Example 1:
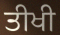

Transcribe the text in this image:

ਤੀਖੀ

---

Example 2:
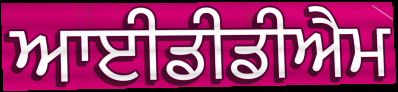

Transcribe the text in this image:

ਆਈਡੀਡੀਐਮ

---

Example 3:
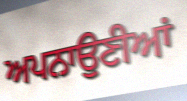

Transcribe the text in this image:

ਅਪਨਾਉਣੀਆਂ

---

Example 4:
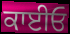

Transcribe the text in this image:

ਕਾਈਓ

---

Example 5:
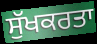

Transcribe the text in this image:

ਸੁੱਖਕਰਤਾ